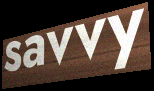
savvy